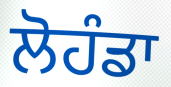
ਲੋਹੰਡਾ